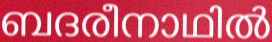
ബദരീനാഥിൽ